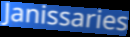
Janissaries